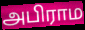
அபிராம